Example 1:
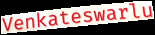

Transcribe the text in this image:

Venkateswarlu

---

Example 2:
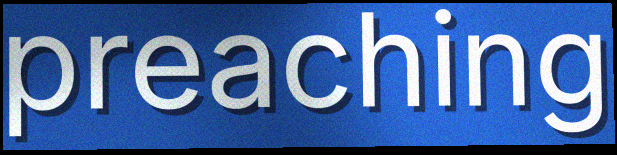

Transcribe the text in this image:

preaching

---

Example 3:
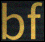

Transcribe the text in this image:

bf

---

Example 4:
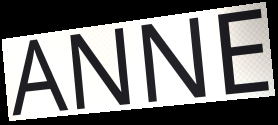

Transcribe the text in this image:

ANNE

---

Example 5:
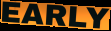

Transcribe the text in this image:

EARLY